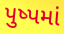
પુષ્પમાં